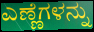
ಎಣ್ಣೆಗಳನ್ನು